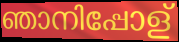
ഞാനിപ്പോള്